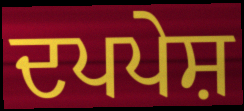
ਦਪਪੇਸ਼